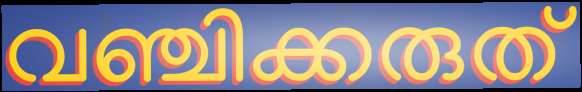
വഞ്ചിക്കരുത്